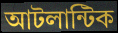
আটলান্টিক